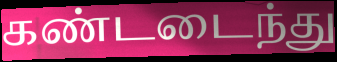
கண்டடைந்து